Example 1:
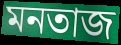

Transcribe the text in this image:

মনতাজ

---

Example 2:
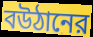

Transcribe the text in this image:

বউঠানের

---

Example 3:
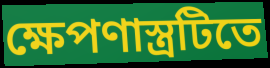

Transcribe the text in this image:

ক্ষেপণাস্ত্রটিতে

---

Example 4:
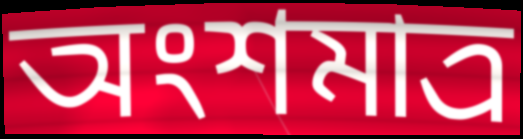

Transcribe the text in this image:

অংশমাত্র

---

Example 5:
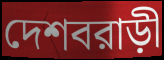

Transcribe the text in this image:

দেশবরাড়ী